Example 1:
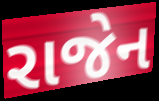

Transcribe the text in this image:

રાજેન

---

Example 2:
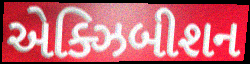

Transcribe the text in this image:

એક્ઝિબીશન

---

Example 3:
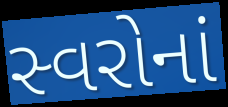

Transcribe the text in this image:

સ્વરોનાં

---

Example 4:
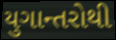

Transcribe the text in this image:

યુગાન્તરોથી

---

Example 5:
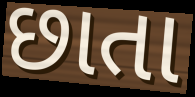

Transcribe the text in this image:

છાતા